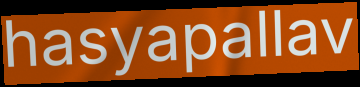
hasyapallav